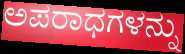
ಅಪರಾಧಗಳನ್ನು